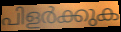
പിളർക്കുക